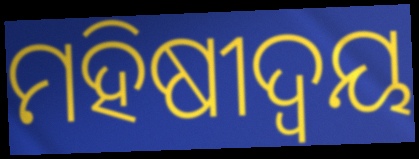
ମହିଷୀଦ୍ୱୟ